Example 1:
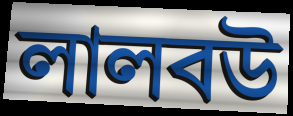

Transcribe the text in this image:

লালবউ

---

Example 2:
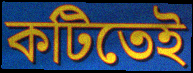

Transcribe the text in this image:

কটিতেই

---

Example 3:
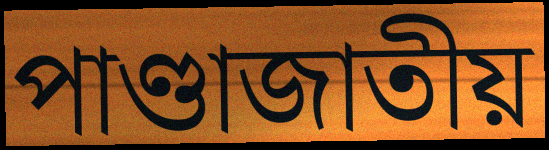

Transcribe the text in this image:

পাণ্ডাজাতীয়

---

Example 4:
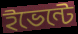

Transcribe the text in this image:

ইভেন্টে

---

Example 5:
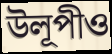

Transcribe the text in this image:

উলূপীও